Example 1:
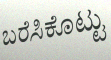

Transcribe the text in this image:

ಬರೆಸಿಕೊಟ್ಟು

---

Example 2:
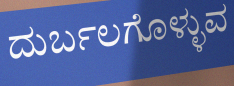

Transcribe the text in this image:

ದುರ್ಬಲಗೊಳ್ಳುವ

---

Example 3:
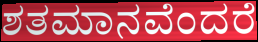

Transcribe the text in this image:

ಶತಮಾನವೆಂದರೆ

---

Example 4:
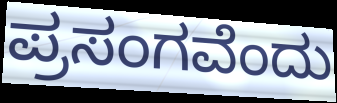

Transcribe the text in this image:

ಪ್ರಸಂಗವೆಂದು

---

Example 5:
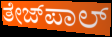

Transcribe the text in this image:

ತೇಜ್‌ಪಾಲ್